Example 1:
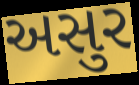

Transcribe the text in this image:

અસુર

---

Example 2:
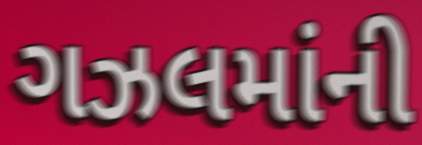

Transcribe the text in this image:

ગઝલમાંની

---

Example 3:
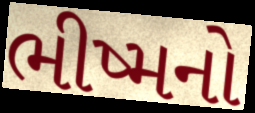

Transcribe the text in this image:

ભીષ્મનો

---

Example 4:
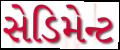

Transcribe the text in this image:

સેડિમેન્ટ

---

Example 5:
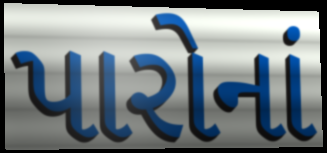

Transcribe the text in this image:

પારોનાં